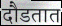
दौडतात